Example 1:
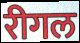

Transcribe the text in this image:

रीगल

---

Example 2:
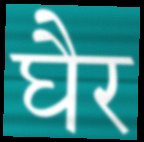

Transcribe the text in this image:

घैर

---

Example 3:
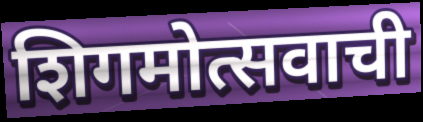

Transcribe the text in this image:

शिगमोत्सवाची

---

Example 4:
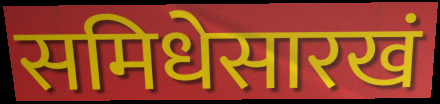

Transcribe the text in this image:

समिधेसारखं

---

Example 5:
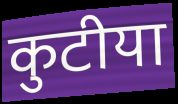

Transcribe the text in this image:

कुटीया